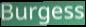
Burgess